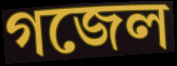
গজেল